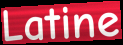
Latine